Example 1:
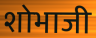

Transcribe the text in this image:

शोभाजी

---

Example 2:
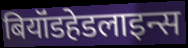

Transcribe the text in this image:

बियॉंडहेडलाइन्स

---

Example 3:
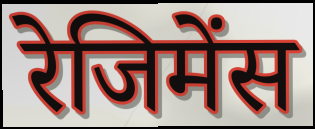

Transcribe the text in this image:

रेजिमेंस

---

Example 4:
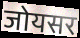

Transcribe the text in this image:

जोयसर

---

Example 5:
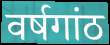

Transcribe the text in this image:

वर्षगांठ